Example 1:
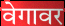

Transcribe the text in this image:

वेगावर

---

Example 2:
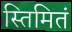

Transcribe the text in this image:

स्तिमितं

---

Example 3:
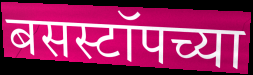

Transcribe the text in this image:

बसस्टॉपच्या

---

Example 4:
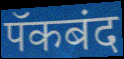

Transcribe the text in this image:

पॅकबंद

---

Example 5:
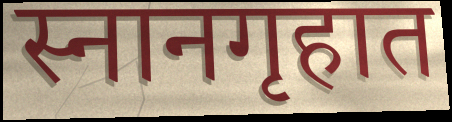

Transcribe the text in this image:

स्नानगृहात